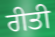
ਰੀਤੀ